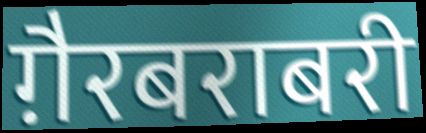
ग़ैरबराबरी